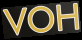
VOH